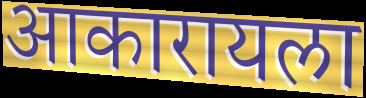
आकारायला